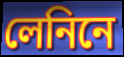
লেনিনে